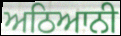
ਅਠਿਆਨੀ